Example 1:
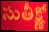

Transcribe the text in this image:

సుతీక్ష్ణో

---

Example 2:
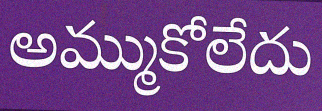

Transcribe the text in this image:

అమ్ముకోలేదు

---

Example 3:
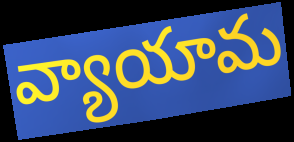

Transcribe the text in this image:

వ్యాయామ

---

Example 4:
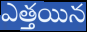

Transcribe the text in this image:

ఎత్తయిన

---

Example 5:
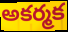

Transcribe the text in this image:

అకర్మక